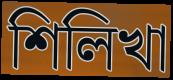
শিলিখা